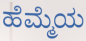
ಹೆಮ್ಮೆಯ